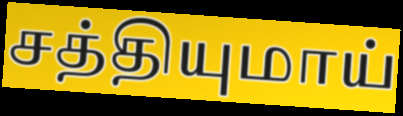
சத்தியுமாய்